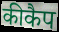
कीकैप